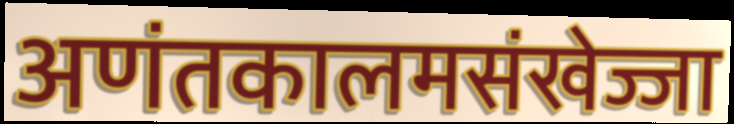
अणंतकालमसंखेज्जा